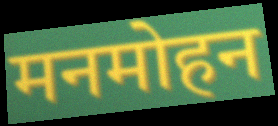
मनमोहन